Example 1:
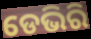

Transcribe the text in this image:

ଡେଭିରି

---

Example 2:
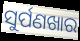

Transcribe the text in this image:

ସୁର୍ପଣଖାର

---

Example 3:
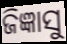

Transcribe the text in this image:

ଜିଜ୍ଞାସୁ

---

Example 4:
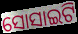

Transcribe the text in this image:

ସୋସାଇଟି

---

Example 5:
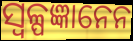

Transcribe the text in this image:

ସ୍ଵଳ୍ପଜ୍ଞାନେନ